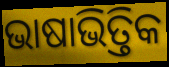
ଭାଷାଭିତ୍ତିକ